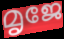
മൃജേ